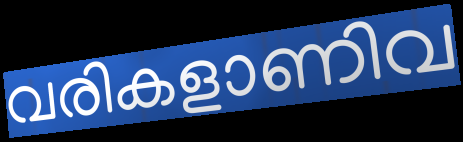
വരികളാണിവ